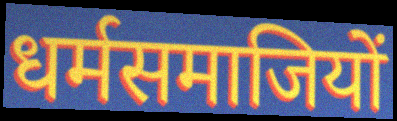
धर्मसमाजियों